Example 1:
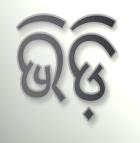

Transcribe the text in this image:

ଭିଡ଼ି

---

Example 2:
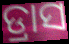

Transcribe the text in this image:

ଡ୍ରାସ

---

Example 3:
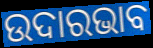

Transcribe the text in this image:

ଉଦାରଭାବ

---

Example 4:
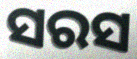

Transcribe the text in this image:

ସରସ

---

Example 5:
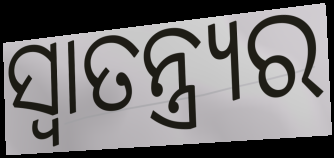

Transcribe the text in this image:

ସ୍ୱାତନ୍ତ୍ର୍ୟର